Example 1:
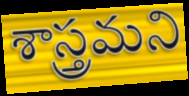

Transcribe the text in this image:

శాస్త్రమని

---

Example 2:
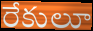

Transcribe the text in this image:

రేకులూ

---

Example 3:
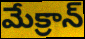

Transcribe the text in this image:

మేక్రాన్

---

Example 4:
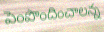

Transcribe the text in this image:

పెంపొందించాలన్న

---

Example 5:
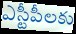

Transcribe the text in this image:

ఎస్టీపీలకు